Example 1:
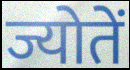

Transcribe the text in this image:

ज्योतें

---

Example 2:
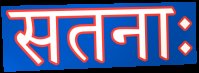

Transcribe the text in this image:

सतनाः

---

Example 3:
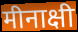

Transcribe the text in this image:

मीनाक्षी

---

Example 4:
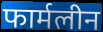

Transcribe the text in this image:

फार्मलीन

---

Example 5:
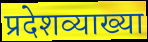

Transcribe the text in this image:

प्रदेशव्याख्या